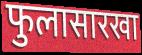
फुलासारखा